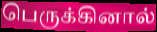
பெருக்கினால்